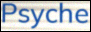
Psyche